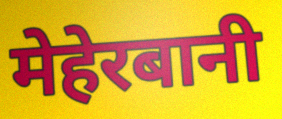
मेहेरबानी